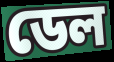
ডেল